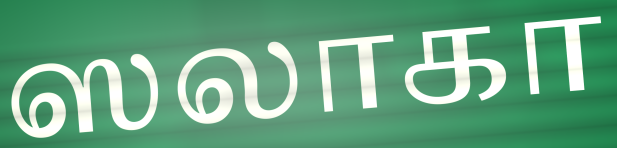
ஸலாகா